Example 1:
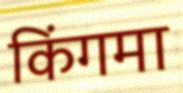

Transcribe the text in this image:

किंगमा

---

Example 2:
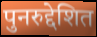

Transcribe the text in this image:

पुनरुद्देशित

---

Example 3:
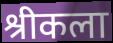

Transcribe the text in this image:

श्रीकला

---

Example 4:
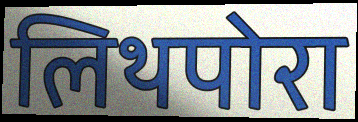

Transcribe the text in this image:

लिथपोरा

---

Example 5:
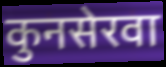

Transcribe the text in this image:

कुनसेरवा